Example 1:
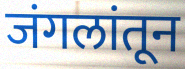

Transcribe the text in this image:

जंगलांतून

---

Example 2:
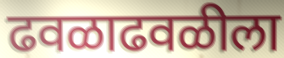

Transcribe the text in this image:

ढवळाढवळीला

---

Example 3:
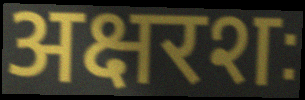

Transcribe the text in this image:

अक्षरशः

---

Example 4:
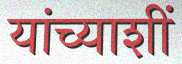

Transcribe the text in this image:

यांच्याशीं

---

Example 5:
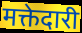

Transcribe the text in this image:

मक्तेदारी